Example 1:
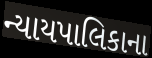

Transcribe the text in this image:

ન્યાયપાલિકાના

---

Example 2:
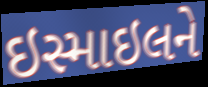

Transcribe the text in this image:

ઇસ્માઇલને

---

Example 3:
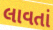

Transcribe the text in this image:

લાવતાં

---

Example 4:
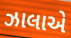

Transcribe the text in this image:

ઝાલાએ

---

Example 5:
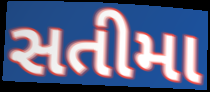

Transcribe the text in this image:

સતીમા